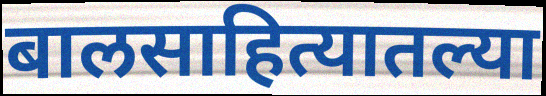
बालसाहित्यातल्या